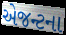
એજન્ટના